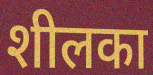
शीलका